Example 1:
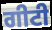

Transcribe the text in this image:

ਗੀਟੀ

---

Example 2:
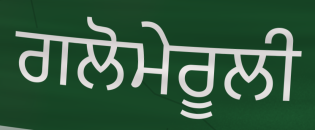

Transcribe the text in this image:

ਗਲੋਮੇਰੂਲੀ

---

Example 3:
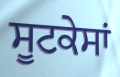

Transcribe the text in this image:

ਸੂਟਕੇਸਾਂ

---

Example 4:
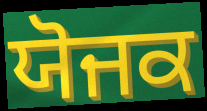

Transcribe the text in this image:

ਯੋਜਕ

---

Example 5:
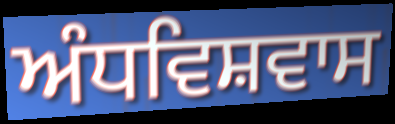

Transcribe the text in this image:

ਅੰਧਵਿਸ਼ਵਾਸ